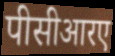
पीसीआरए